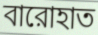
বারোহাত